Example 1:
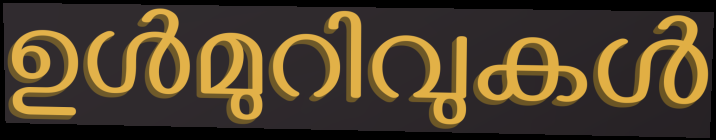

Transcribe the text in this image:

ഉൾമുറിവുകൾ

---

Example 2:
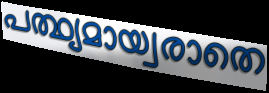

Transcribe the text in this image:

പത്ഥ്യമായ്വരാതെ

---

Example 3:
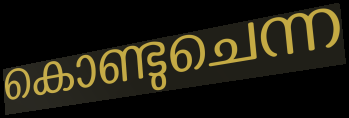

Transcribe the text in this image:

കൊണ്ടുചെന്ന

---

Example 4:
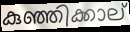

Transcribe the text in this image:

കുഞ്ഞിക്കാല്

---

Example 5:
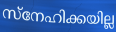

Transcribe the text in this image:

സ്നേഹിക്കയില്ല